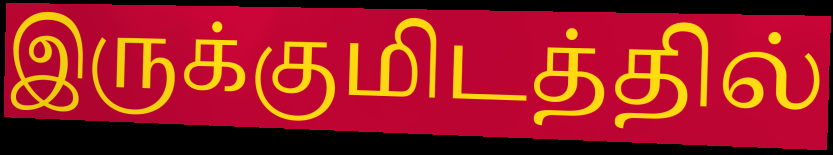
இருக்குமிடத்தில்